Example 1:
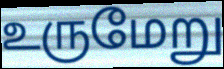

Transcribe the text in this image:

உருமேறு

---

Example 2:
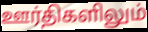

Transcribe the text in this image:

ஊர்திகளிலும்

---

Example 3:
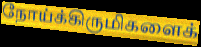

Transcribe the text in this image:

நோய்க்கிருமிகளைக்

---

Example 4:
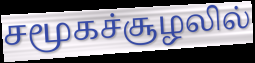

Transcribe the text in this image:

சமூகச்சூழலில்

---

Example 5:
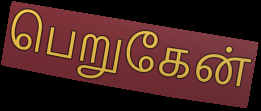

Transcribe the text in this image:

பெறுகேன்